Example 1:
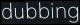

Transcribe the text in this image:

dubbing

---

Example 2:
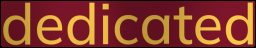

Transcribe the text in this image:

dedicated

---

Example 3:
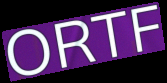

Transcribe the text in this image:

ORTF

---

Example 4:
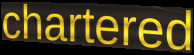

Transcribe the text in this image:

chartered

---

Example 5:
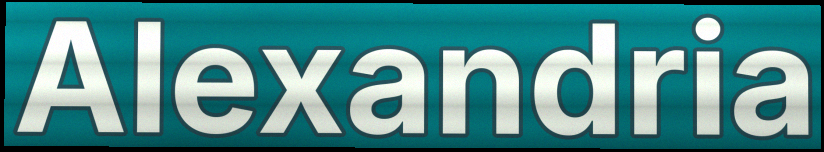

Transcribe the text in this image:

Alexandria